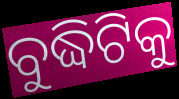
ବୁଦ୍ଧିଟିକୁ